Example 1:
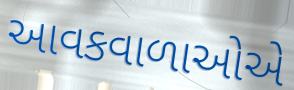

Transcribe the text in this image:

આવકવાળાઓએ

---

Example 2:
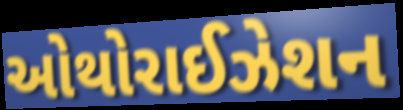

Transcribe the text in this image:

ઓથોરાઈઝેશન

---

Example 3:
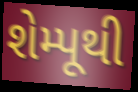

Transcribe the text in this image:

શેમ્પૂથી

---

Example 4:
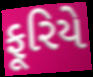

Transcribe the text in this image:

ફૂરિયે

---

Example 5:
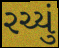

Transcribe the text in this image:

રચ્યું